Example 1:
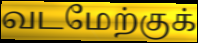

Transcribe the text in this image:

வடமேற்குக்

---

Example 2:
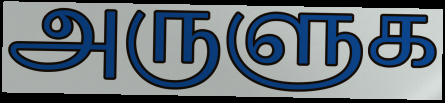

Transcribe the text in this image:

அருளுக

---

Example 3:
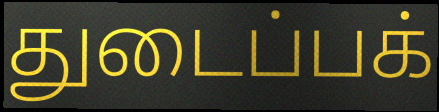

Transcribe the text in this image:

துடைப்பக்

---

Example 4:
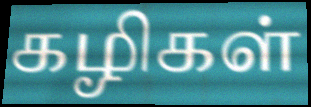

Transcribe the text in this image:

கழிகள்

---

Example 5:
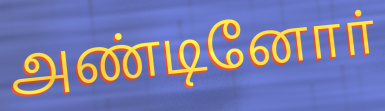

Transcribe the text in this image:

அண்டினோர்